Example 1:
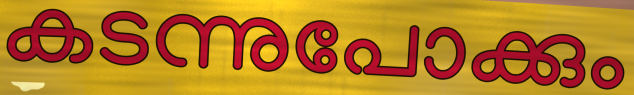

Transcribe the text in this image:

കടന്നുപോക്കും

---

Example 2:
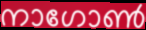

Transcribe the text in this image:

നാഗോൺ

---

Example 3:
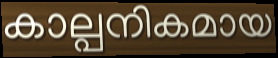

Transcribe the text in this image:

കാല്പനികമായ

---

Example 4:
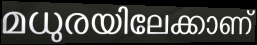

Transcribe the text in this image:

മധുരയിലേക്കാണ്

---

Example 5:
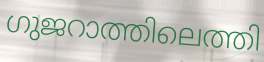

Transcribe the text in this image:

ഗുജറാത്തിലെത്തി